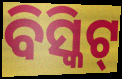
ବିସ୍କିଟ୍